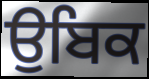
ਉਬਿਕ